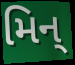
મિન્